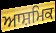
ਆਸ਼ਮਿਕ